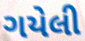
ગયેલી